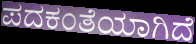
ಪದಕಂತೆಯಾಗಿದೆ